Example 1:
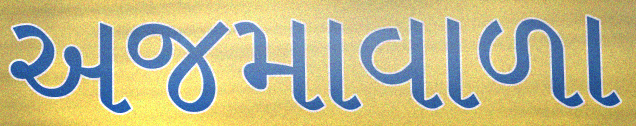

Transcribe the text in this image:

અજમાવાળા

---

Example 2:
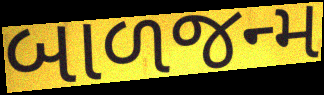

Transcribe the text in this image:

બાળજન્મ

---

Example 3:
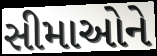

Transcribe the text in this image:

સીમાઓને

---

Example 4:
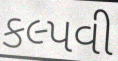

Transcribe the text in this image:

કલ્પવી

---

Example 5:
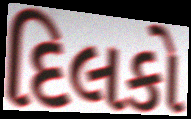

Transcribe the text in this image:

દિલકો